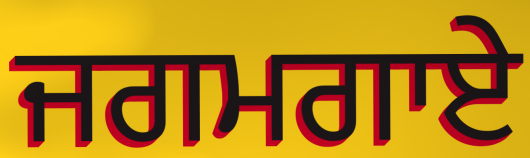
ਜਗਮਗਾਏ